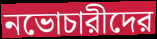
নভোচারীদের